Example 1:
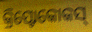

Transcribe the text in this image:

କ୍ରିପ୍ଟୋକୋକସ୍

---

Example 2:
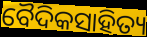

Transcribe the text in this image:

ବୈଦିକସାହିତ୍ୟ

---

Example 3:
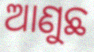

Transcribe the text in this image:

ଆଣୁଛ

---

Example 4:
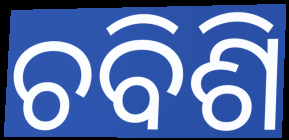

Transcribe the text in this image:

ଚବିଶି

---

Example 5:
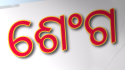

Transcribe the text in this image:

ଶେଂଗ